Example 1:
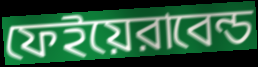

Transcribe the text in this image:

ফেইয়েরাবেন্ড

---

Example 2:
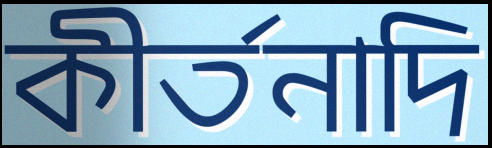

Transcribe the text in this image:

কীর্তনাদি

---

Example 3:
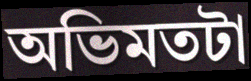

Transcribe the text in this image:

অভিমতটা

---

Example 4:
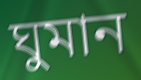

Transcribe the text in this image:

ঘুমান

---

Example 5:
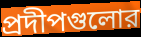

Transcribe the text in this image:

প্রদীপগুলোর